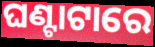
ଘଣ୍ଟାଟାରେ